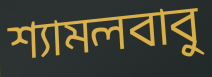
শ্যামলবাবু